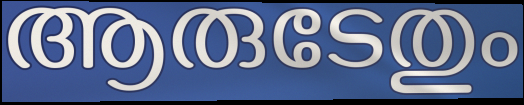
ആരുടേതും